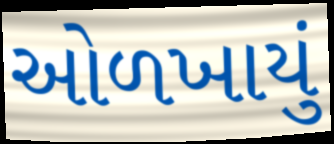
ઓળખાયું